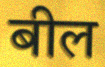
बील